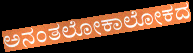
ಅನಂತಲೋಕಾಲೋಕದ